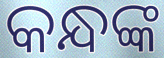
କନ୍ଧଙ୍କ